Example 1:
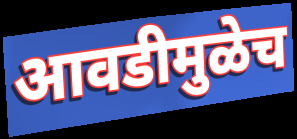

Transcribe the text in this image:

आवडीमुळेच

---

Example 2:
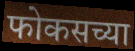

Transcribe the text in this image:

फोकसच्या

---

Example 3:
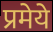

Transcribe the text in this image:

प्रमेये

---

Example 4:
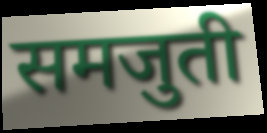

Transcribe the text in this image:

समजुती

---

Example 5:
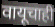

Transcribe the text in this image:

वायूचाही